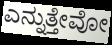
ಎನ್ನುತ್ತೇವೋ